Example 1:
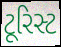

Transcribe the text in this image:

ટૂરિસ્ટ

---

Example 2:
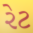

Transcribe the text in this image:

રેટ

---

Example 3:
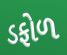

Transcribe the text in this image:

ડફોળ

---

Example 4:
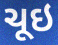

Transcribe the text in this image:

ચૂઇ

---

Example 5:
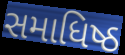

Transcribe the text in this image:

સમાધિષ્ઠ